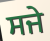
ਸਜੇ